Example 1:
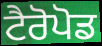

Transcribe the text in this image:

ਟੈਰੋਪੋਡ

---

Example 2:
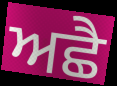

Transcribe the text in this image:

ਅਛੈ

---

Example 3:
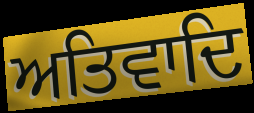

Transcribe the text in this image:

ਅਤਿਵਾਦਿ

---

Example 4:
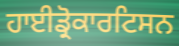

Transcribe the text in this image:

ਹਾਈਡ੍ਰੋਕਾਰਟਿਸਨ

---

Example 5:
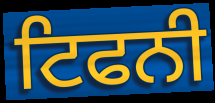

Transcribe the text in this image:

ਟਿਫਨੀ